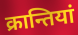
क्रान्तियां